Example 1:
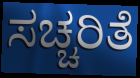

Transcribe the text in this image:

ಸಚ್ಚರಿತೆ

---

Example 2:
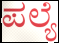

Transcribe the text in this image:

ಪಲ್ಯೆ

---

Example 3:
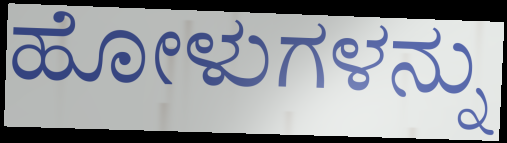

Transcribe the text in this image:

ಹೋಳುಗಳನ್ನು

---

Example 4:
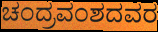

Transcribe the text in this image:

ಚಂದ್ರವಂಶದವರ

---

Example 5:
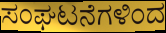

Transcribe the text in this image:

ಸಂಘಟನೆಗಳಿಂದ